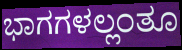
ಭಾಗಗಳಲ್ಲಂತೂ